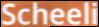
Scheeli